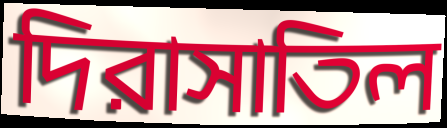
দিরাসাতিল